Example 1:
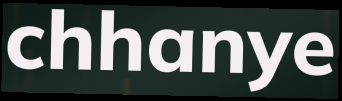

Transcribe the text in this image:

chhanye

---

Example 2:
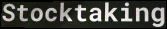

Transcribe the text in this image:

Stocktaking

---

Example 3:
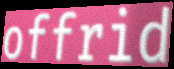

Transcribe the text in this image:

offrid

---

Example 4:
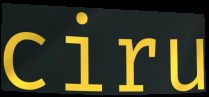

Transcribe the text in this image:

ciru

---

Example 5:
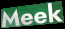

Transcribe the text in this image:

Meek